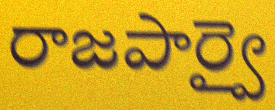
రాజపార్వై